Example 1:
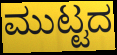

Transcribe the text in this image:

ಮುಟ್ಟದ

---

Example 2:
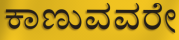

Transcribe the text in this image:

ಕಾಣುವವರೇ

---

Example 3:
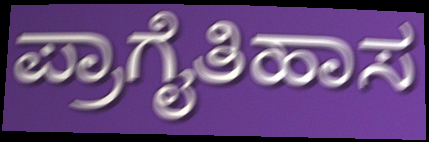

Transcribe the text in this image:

ಪ್ರಾಗೈತಿಹಾಸ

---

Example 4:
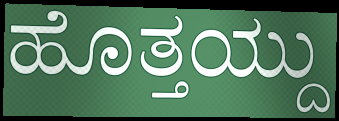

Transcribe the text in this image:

ಹೊತ್ತಯ್ದು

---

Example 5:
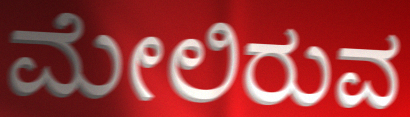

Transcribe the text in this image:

ಮೇಲಿರುವ